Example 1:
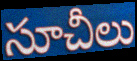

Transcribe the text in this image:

సూచీలు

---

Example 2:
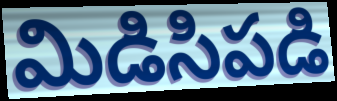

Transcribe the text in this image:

మిడిసిపడి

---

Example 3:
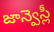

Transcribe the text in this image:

జాన్వెస్లీ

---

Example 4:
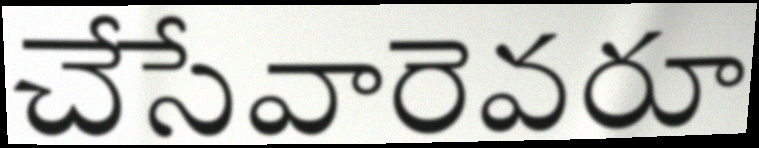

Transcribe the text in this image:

చేసేవారెవరూ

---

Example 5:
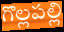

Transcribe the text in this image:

గొల్లపల్లి